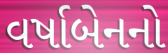
વર્ષાબેનનો